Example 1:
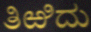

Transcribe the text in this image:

ತಿಱಿದು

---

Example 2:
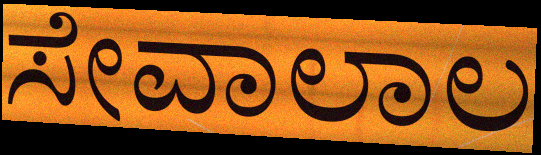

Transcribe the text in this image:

ಸೇವಾಲಾಲ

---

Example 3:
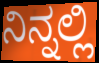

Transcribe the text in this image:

ನಿನ್ನಲ್ಲಿ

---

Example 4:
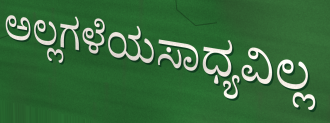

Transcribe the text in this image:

ಅಲ್ಲಗಳೆಯಸಾಧ್ಯವಿಲ್ಲ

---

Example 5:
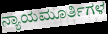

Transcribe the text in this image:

ನ್ಯಾಯಮೂರ್ತಿಗಳ